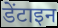
डेंटाइन